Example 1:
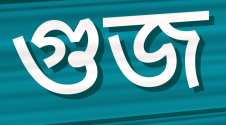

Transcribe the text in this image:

গুজ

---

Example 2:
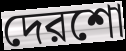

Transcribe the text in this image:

দেরশো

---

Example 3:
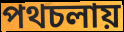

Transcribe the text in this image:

পথচলায়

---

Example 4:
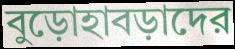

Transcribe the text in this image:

বুড়োহাবড়াদের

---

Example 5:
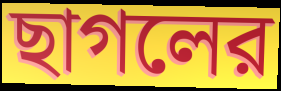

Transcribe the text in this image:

ছাগলের